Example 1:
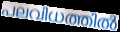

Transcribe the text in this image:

പലവിധത്തിൽ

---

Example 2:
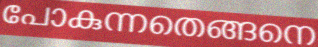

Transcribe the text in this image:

പോകുന്നതെങ്ങനെ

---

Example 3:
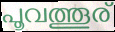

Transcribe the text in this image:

പൂവത്തൂര്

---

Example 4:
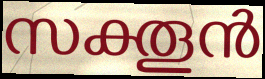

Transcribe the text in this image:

സക്തൂൻ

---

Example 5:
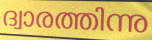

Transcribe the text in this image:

ദ്വാരത്തിന്നു